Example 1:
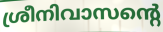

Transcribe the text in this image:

ശ്രീനിവാസന്റെ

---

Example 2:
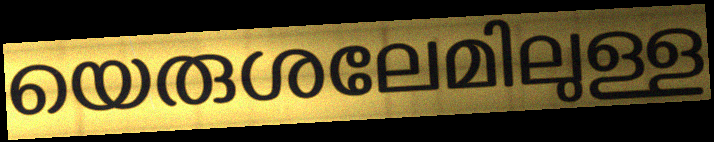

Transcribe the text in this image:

യെരുശലേമിലുള്ള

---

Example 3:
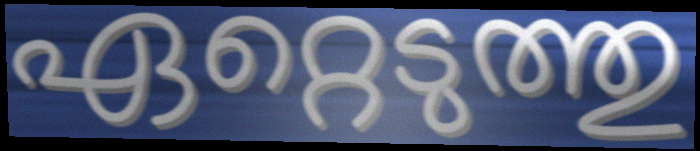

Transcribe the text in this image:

ഏറ്റെടുത്തു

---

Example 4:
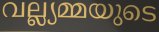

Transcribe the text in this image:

വല്ല്യമ്മയുടെ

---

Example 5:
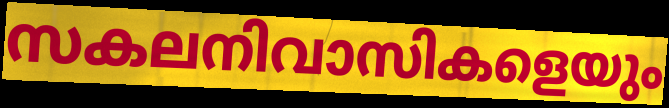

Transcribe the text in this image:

സകലനിവാസികളെയും